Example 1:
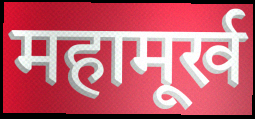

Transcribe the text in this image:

महामूर्ख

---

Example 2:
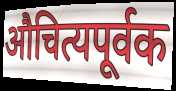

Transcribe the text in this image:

औचित्यपूर्वक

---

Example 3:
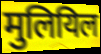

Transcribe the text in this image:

मुलियिल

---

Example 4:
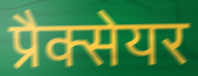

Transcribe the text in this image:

प्रैक्सेयर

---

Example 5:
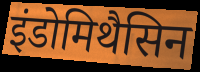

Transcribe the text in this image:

इंडोमिथैसिन